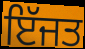
ਇੱਜਤ